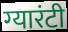
ग्‍यारंटी